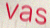
vas